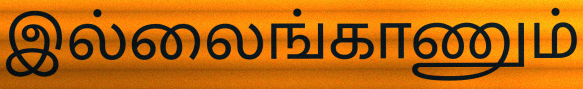
இல்லைங்காணும்